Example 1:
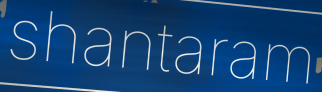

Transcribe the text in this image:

shantaram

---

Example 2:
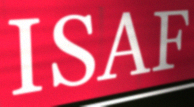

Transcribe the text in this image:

ISAF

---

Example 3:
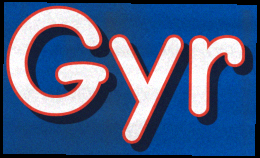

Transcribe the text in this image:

Gyr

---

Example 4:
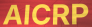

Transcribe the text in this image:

AICRP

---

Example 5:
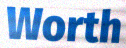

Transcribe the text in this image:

Worth